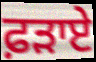
ਫ਼ੜਾਏ